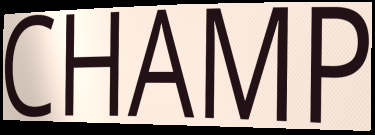
CHAMP